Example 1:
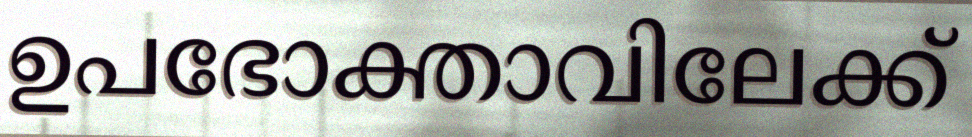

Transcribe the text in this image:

ഉപഭോക്താവിലേക്ക്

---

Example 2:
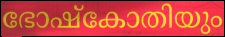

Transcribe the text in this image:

ഭോഷ്കോതിയും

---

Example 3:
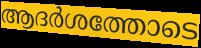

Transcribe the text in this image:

ആദർശത്തോടെ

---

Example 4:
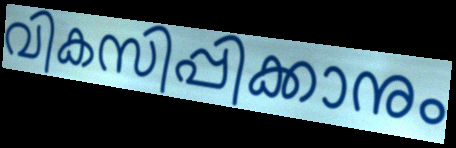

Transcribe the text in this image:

വികസിപ്പിക്കാനും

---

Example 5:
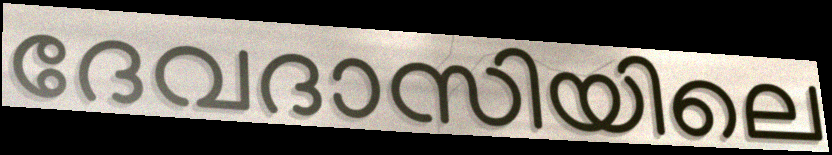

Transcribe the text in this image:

ദേവദാസിയിലെ